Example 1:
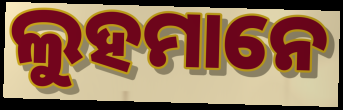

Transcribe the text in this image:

ଲୁହମାନେ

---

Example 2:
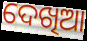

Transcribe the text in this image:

ଦେଖିଆ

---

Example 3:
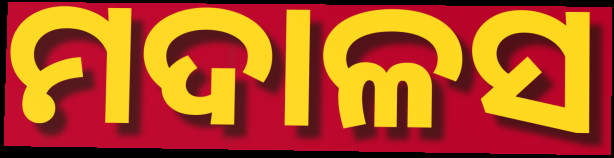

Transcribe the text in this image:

ମଦାଳସ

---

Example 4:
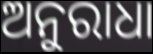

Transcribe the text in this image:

ଅନୁରାଧା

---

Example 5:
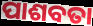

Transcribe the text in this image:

ପାଶବତା